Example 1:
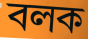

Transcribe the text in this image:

বলক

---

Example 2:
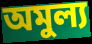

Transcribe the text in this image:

অমুল্য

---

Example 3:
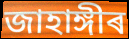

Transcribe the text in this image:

জাহাঙ্গীৰ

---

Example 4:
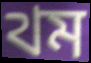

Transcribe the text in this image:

থম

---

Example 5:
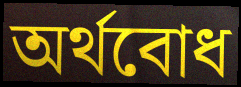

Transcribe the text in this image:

অৰ্থবোধ